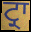
ਟ੍ਰਾ